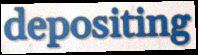
depositing